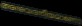
അനുവദനീയമാണോ